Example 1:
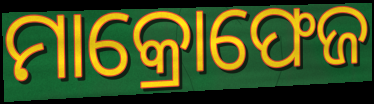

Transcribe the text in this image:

ମାକ୍ରୋଫେଜ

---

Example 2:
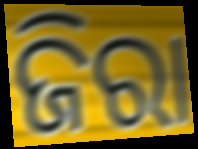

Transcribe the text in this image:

ଜିରା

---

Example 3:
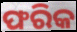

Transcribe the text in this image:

ଫରିକ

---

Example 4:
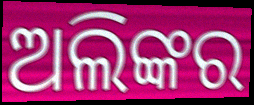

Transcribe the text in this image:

ଅଲିଙ୍କର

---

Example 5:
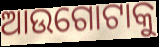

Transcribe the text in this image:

ଆଉଗୋଟାକୁ